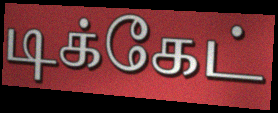
டிக்கேட்